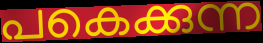
പകെക്കുന്ന